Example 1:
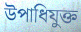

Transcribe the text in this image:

উপাধিযুক্ত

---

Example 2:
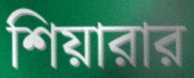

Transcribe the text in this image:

শিয়ারার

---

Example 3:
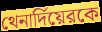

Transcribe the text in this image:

থেনার্দিয়েরকে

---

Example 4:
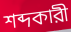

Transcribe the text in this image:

শব্দকারী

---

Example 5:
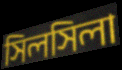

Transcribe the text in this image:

সিলসিলা